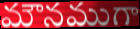
మౌనముగా